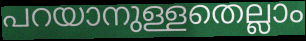
പറയാനുള്ളതെല്ലാം